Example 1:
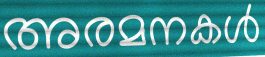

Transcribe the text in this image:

അരമനകൾ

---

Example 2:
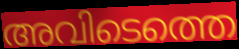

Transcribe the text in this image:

അവിടെത്തെ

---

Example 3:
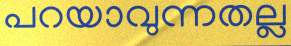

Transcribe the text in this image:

പറയാവുന്നതല്ല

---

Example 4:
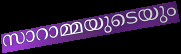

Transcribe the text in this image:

സാറാമ്മയുടെയും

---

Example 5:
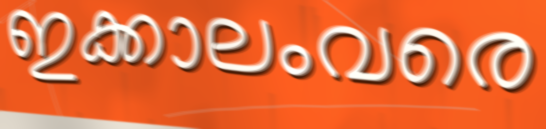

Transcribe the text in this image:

ഇക്കാലംവരെ